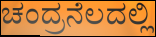
ಚಂದ್ರನೆಲದಲ್ಲಿ